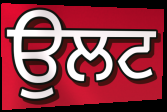
ਉਲਟ